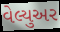
વેલ્યુઅર